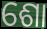
ଶୋ